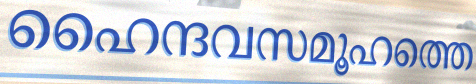
ഹൈന്ദവസമൂഹത്തെ